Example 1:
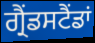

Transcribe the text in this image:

ਗ੍ਰੈਂਡਸਟੈਂਡਾਂ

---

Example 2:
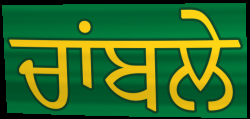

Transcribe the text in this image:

ਚਾਂਬਲੇ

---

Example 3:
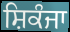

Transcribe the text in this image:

ਸ਼ਿਕੰਜਾ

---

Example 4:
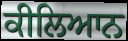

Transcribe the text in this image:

ਕੀਲਿਆਨ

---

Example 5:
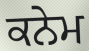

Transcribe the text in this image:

ਕਨੇਮ